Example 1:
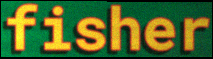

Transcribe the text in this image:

fisher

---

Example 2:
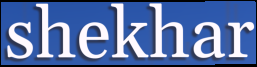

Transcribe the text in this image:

shekhar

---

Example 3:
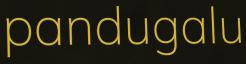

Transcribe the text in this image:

pandugalu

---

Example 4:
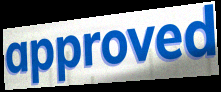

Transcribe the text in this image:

approved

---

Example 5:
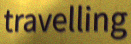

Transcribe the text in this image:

travelling